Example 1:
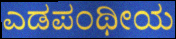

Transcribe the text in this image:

ಎಡಪಂಥೀಯ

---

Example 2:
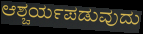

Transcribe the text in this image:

ಆಶ್ಚರ್ಯಪಡುವುದು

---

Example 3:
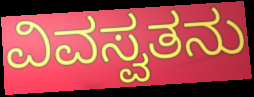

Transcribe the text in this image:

ವಿವಸ್ವತನು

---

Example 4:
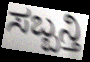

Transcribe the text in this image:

ಸಬ್ಬನ್ತಿ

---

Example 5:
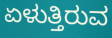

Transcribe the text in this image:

ಏಳುತ್ತಿರುವ